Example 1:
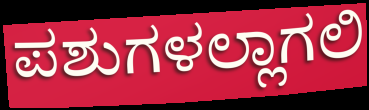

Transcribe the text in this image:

ಪಶುಗಳಲ್ಲಾಗಲಿ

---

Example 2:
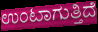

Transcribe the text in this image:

ಉಂಟಾಗುತ್ತಿದೆ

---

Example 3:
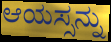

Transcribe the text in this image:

ಆಯಸ್ಸನ್ನು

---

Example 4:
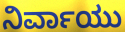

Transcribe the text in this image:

ನಿರ್ವಾಯು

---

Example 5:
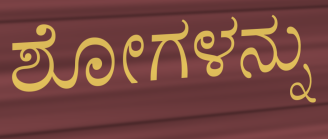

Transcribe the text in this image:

ಶೋಗಳನ್ನು